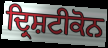
ਦ੍ਰਿਸ਼ਟੀਕੋਨ